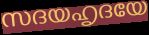
സദയഹൃദയേ